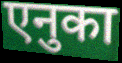
एनुका